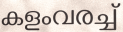
കളംവരച്ച്